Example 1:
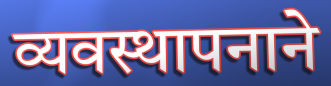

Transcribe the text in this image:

व्यवस्थापनाने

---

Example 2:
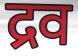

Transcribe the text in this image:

द्रव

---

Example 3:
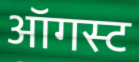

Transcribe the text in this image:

ऑगस्ट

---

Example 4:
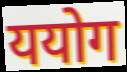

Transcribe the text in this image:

ययोग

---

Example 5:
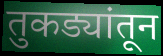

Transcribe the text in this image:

तुकड्यांतून